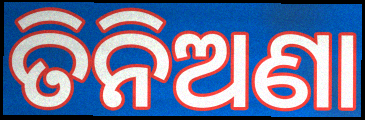
ତିନିଅଣା